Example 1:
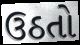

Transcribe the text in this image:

ઉઠતો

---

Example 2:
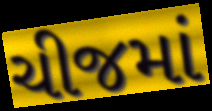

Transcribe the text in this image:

ચીજમાં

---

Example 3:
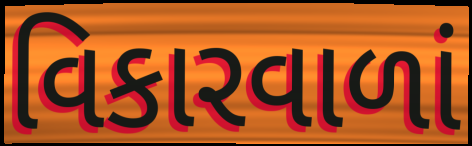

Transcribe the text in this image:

વિકારવાળાં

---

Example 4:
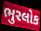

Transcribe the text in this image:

ભુરલોક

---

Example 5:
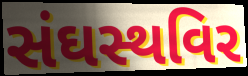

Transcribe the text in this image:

સંઘસ્થવિર